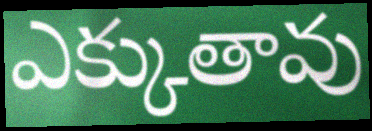
ఎక్కుతావు